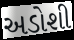
અડોશી